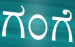
ಗಂಗೆ